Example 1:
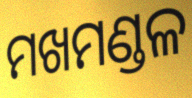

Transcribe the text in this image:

ମଖମଣ୍ଡଳ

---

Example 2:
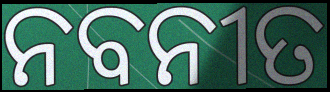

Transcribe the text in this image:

ନବନୀତ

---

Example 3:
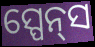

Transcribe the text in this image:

ସ୍ପେନ୍‌ସ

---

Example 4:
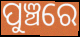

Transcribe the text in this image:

ପୁଞ୍ଚରେ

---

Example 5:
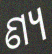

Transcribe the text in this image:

ଣ୍ଯ